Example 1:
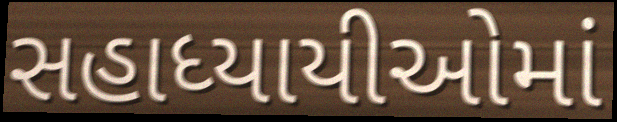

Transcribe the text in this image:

સહાધ્યાયીઓમાં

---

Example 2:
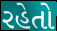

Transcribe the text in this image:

રહેતો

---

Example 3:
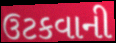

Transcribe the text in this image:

ઉટકવાની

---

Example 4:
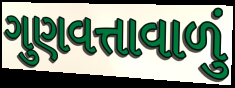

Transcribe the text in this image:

ગુણવત્તાવાળું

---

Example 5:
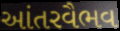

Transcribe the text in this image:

આંતરવૈભવ